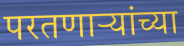
परतणाऱ्यांच्या